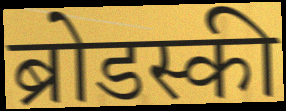
ब्रोडस्की